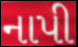
નાપી